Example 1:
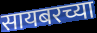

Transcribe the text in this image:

सायबरच्या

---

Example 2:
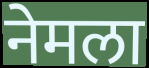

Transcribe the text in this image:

नेमला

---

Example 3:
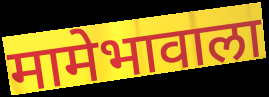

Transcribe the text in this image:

मामेभावाला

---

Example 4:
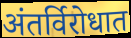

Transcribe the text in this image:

अंतर्विरोधात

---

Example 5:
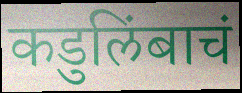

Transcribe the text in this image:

कडुलिंबाचं